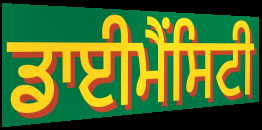
ਡਾਈਮੈਂਸਿਟੀ